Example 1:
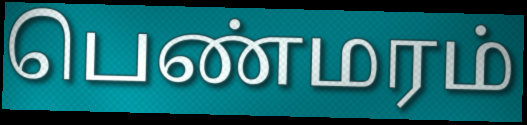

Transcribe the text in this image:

பெண்மரம்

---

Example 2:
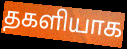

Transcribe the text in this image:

தகளியாக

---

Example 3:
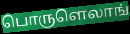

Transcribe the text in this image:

பொருளெலாங்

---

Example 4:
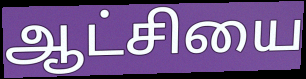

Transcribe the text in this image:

ஆட்சியை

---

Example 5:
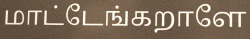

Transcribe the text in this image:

மாட்டேங்கறாளே